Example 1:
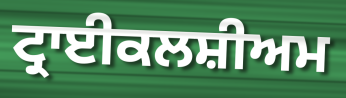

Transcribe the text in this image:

ਟ੍ਰਾਈਕਲਸ਼ੀਅਮ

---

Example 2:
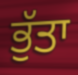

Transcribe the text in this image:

ਭੁੱਤਾ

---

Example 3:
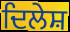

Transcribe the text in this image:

ਦਿਲੇਸ਼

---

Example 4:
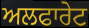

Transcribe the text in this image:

ਅਲਫਾਰੇਟ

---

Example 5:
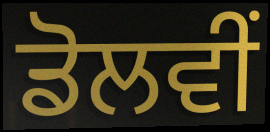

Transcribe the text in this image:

ਡੋਲਵੀਂ